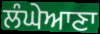
ਲੰਘੇਆਣਾ